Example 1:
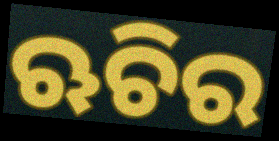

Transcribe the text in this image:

ଋଚିର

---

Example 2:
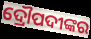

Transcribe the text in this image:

ଦ୍ରୌପଦୀଙ୍କର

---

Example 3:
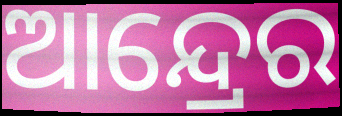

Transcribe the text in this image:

ଆନ୍ଦ୍ରେର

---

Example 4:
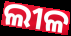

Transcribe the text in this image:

ଲୀଳ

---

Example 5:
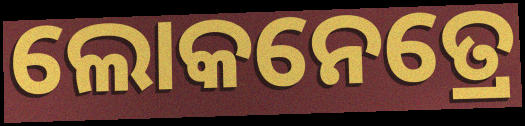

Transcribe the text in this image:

ଲୋକନେତ୍ରେ